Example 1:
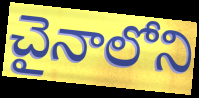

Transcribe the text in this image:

చైనాలోని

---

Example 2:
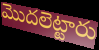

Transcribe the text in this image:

మొదలెట్టారు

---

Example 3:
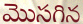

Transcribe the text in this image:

మొసగిన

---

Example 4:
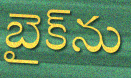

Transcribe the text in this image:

బైక్‌ను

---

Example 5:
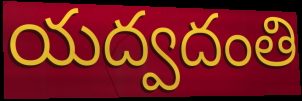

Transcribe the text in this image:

యద్వదంతి